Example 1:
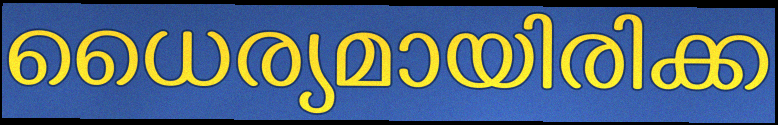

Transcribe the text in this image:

ധൈര്യമായിരിക്ക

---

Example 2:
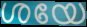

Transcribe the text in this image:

ശയേ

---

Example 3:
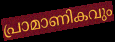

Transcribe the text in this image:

പ്രാമാണികവും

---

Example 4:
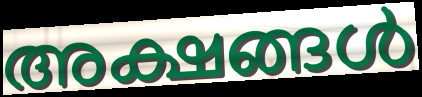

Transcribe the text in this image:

അക്ഷങ്ങൾ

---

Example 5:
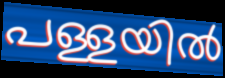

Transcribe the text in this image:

പള്ളയിൽ